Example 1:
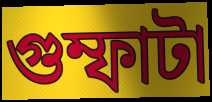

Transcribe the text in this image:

গুম্ফাটা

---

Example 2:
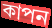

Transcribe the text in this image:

কাপন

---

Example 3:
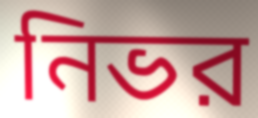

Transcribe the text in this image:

নিভর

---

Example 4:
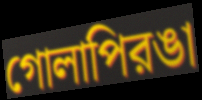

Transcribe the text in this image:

গোলাপিরঙা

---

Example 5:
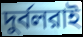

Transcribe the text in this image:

দুর্বলরাই